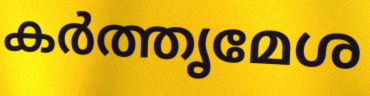
കർത്തൃമേശ